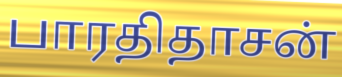
பாரதிதாசன்